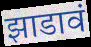
झाडावं